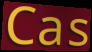
Cas